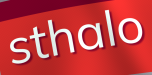
sthalo